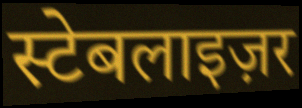
स्टेबलाइज़र